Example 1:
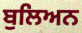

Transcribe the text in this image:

ਬੁਲਿਅਨ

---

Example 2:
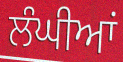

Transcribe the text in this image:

ਲੰਘੀਆਂ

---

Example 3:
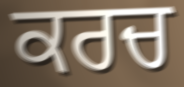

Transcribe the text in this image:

ਕਰਚ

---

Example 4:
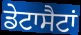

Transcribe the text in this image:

ਡੇਟਾਸੈਟਾਂ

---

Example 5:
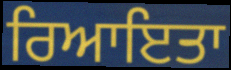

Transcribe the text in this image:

ਰਿਆਇਤਾ